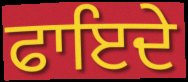
ਫਾਇਦੇ